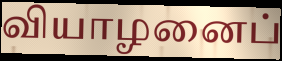
வியாழனைப்